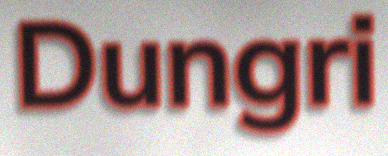
Dungri